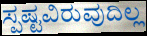
ಸ್ಪಷ್ಟವಿರುವುದಿಲ್ಲ